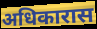
अधिकारास